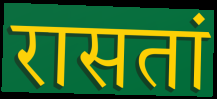
रासतां